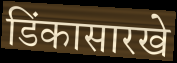
डिंकासारखे